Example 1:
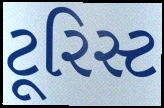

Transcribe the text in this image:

ટૂરિસ્ટ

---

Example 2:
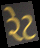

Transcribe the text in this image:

રેટ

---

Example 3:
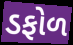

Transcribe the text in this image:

ડફોળ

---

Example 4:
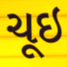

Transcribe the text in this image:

ચૂઇ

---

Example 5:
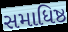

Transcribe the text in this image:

સમાધિષ્ઠ